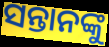
ସନ୍ତାନଙ୍କୁ